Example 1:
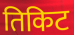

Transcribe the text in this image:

तिकिट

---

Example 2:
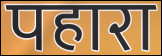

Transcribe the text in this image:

पहारा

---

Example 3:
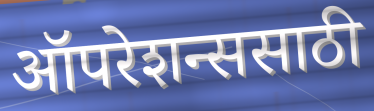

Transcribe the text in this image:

ऑपरेशन्ससाठी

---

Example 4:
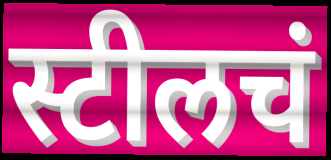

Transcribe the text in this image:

स्टीलचं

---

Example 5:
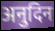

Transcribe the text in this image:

अनुदिन